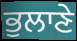
ਭੁਲਾਣੇ